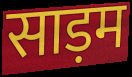
साड़म